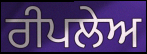
ਰੀਪਲੇਅ